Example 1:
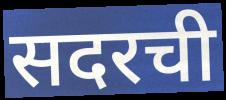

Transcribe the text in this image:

सदरची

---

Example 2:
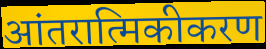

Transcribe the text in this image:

आंतरात्मिकीकरण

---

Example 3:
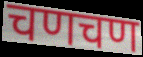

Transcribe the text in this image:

चणचण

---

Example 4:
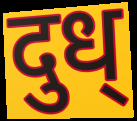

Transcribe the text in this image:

दुध्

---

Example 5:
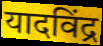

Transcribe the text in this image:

यादविंद्र